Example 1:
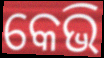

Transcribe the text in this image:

କେଭି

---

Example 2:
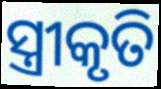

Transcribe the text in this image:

ସ୍ତ୍ରୀକୃତି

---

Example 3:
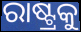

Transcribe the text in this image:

ରାଷ୍ଟ୍ରକୁ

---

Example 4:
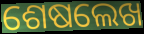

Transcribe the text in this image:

ଶେଷଲେଖ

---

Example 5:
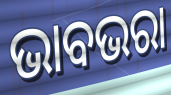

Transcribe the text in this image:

ଭାବଭରା